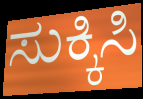
ಸುಕ್ಕಿಸಿ